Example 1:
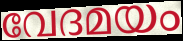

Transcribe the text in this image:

വേദമയം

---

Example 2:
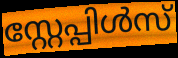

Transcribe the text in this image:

സ്റ്റേപ്പിൾസ്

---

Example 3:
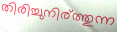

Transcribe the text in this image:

തിരിച്ചുനിര്ത്തുന്ന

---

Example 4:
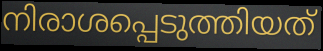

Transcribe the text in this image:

നിരാശപ്പെടുത്തിയത്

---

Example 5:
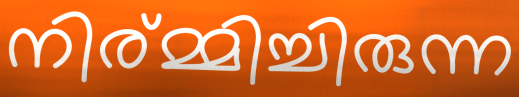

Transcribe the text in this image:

നിര്മ്മിച്ചിരുന്ന